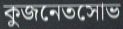
কুজনেতসোভ